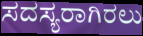
ಸದಸ್ಯರಾಗಿರಲು